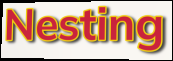
Nesting